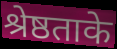
श्रेष्ठताके